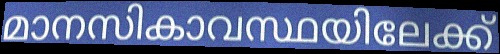
മാനസികാവസ്ഥയിലേക്ക്